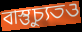
বাস্তুচ্যুতও